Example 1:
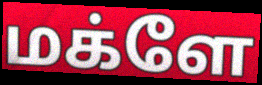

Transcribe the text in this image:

மக்ளே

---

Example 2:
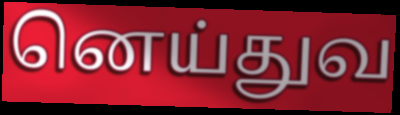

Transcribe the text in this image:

னெய்துவ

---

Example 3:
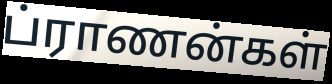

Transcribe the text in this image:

ப்ராணன்கள்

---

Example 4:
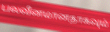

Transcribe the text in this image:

பலவீனமானதாகவும்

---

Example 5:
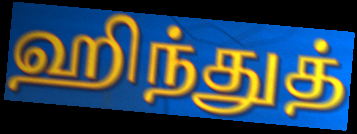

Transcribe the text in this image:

ஹிந்துத்